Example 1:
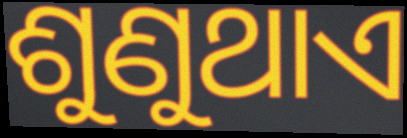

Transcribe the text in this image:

ଶୁଣୁଥାଏ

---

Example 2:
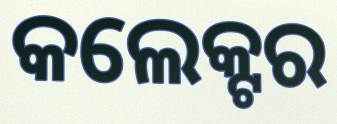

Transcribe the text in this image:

କଲେକ୍ଟର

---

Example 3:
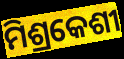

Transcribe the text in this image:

ମିଶ୍ରକେଶୀ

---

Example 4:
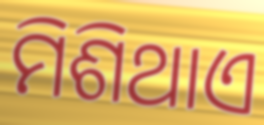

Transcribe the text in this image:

ମିଶିଥାଏ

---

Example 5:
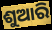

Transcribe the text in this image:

ଶୁଆରି